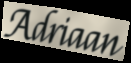
Adriaan